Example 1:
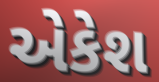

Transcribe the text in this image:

એકેશ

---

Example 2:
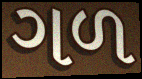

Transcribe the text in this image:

ગળ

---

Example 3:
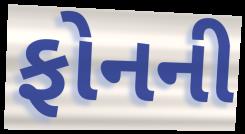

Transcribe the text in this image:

ફોનની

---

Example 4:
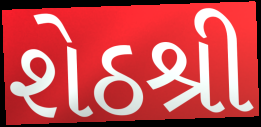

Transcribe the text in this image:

શેઠશ્રી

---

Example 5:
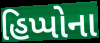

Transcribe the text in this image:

હિપ્પોના